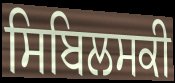
ਸਿਬਿਲਸਕੀ